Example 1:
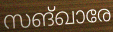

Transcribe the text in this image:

സങ്ഖാരേ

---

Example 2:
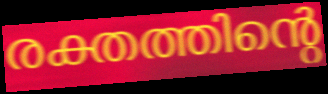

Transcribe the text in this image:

രക്തത്തിന്റെ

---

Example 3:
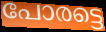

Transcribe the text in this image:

പോരട്ടെ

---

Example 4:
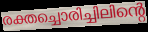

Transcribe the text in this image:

രക്തച്ചൊരിച്ചിലിന്റെ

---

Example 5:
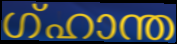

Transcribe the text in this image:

ഗ്ഹാന്ത